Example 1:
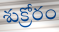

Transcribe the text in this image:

శుక్రోరం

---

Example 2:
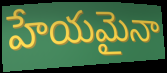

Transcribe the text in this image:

హేయమైనా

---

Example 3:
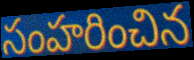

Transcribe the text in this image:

సంహరించిన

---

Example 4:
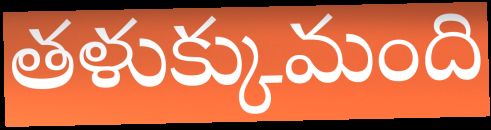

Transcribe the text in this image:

తళుక్కుమంది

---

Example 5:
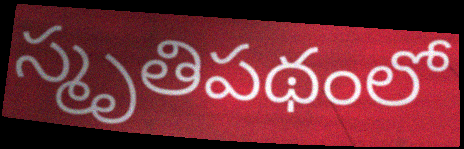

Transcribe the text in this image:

స్మృతిపథంలో